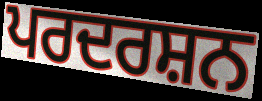
ਪਰਦਰਸ਼ਨ